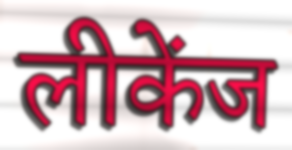
लीकेंज